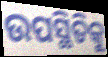
ଉପସ୍ଥିତିକୁ